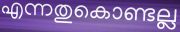
എന്നതുകൊണ്ടല്ല